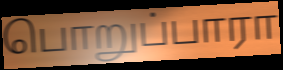
பொறுப்பாரா